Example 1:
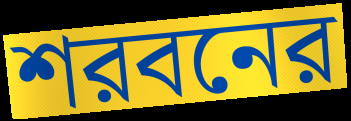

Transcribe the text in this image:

শরবনের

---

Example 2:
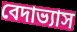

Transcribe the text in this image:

বেদাভ্যাস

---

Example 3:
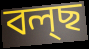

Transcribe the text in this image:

বল্‌ছ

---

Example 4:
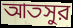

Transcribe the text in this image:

আতসুর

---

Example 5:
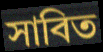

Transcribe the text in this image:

সাবিত